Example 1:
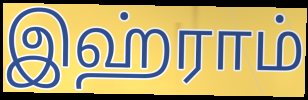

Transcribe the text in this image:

இஹ்ராம்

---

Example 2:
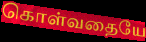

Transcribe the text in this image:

கொள்வதையே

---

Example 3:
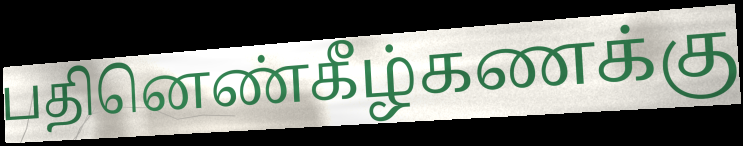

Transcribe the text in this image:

பதினெண்கீழ்கணக்கு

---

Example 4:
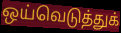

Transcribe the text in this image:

ஒய்வெடுத்துக்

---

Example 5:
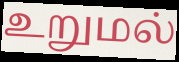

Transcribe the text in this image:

உறுமல்